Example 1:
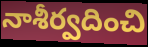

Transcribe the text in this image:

నాశీర్వదించి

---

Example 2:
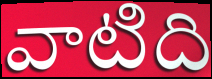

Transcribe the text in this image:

వాటిది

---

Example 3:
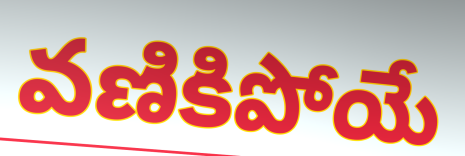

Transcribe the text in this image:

వణికిపోయే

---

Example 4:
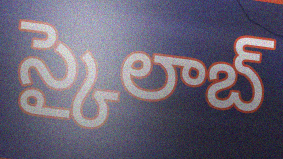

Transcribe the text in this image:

స్కైలాబ్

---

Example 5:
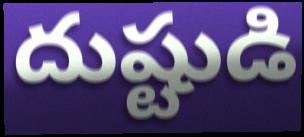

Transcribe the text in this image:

దుష్టుడి